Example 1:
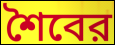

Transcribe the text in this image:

শৈবের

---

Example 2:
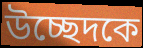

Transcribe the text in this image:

উচ্ছেদকে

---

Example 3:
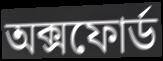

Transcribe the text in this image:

অক্সফোর্ড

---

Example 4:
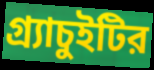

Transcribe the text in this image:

গ্র্যাচুইটির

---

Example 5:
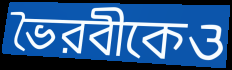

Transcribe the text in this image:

ভৈরবীকেও